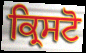
ਕ੍ਰਿਸਟੋ